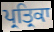
ਪ੍ਰਤ੍ਰਿਕਾ